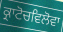
ਕ੍ਰਾਟੋਚਵਿਲੋਵਾ